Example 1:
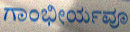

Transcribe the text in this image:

ಗಾಂಭೀರ್ಯವೂ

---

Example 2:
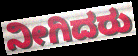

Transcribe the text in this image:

ನೀಗಿದರು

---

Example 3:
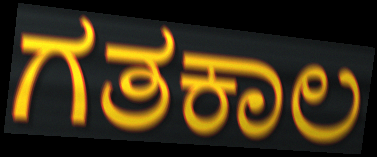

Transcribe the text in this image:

ಗತಕಾಲ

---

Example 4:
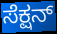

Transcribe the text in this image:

ಸೆಕ್ಷನ್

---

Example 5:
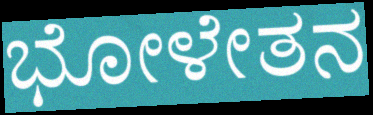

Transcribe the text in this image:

ಭೋಳೇತನ